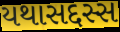
યથાસદ્દસ્સ